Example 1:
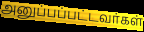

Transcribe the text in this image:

அனுப்பப்பட்டவர்கள்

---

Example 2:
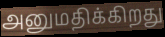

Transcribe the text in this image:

அனுமதிக்கிறது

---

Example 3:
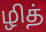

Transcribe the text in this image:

ழித்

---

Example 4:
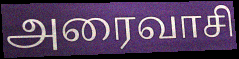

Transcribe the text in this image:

அரைவாசி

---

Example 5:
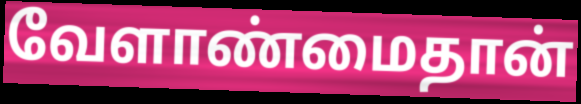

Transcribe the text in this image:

வேளாண்மைதான்